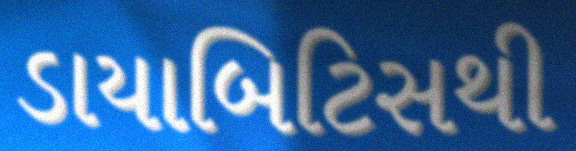
ડાયાબિટિસથી